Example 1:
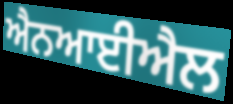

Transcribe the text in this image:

ਐਨਆਈਐਲ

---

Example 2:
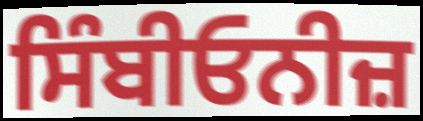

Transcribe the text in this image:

ਸਿੰਬੀਓਨੀਜ਼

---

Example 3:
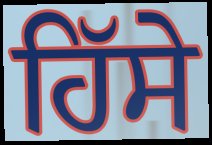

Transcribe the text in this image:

ਹਿੱਸੇ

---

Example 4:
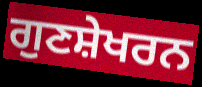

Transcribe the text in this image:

ਗੁਣਸ਼ੇਖਰਨ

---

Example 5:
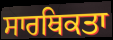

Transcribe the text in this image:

ਸਾਰਥਿਕਤਾ